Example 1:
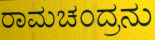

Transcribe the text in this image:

ರಾಮಚಂದ್ರನು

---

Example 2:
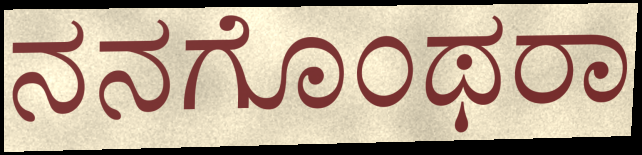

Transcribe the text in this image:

ನನಗೊಂಥರಾ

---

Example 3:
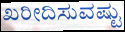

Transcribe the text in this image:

ಖರೀದಿಸುವಷ್ಟು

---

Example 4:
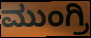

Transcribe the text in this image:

ಮುಂಗ್ರಿ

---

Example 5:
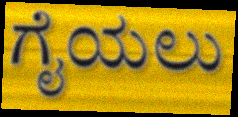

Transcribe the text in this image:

ಗೈಯಲು